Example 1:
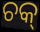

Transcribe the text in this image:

ଚକ୍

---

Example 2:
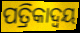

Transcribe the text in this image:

ପତ୍ରିକାଦ୍ୱୟ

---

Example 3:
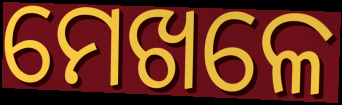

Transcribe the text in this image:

ମେଖଳେ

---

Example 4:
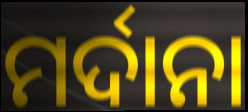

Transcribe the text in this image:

ମର୍ଦାନା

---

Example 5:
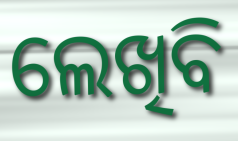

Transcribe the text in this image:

ଲେଖିବି